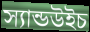
স্যান্ডউইচ